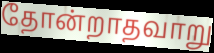
தோன்றாதவாறு